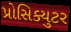
પ્રોસિક્યુટર